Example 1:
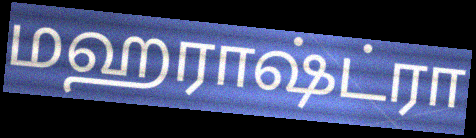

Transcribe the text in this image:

மஹராஷ்ட்ரா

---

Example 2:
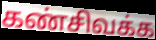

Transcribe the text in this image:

கண்சிவக்க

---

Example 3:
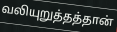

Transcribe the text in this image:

வலியுறுத்தத்தான்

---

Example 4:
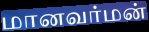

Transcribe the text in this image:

மானவர்மன்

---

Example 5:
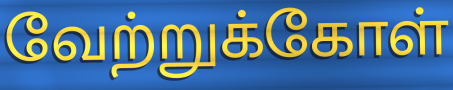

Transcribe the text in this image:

வேற்றுக்கோள்